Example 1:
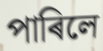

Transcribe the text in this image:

পাৰিলে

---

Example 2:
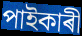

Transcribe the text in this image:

পাইকাৰী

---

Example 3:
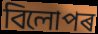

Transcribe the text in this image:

বিলোপৰ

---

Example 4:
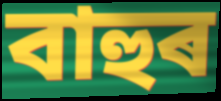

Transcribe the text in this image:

বাহুৰ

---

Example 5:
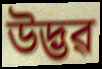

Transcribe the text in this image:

উদ্ভৱ